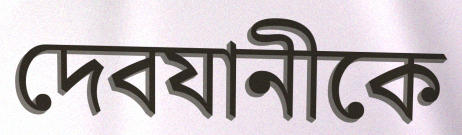
দেবযানীকে